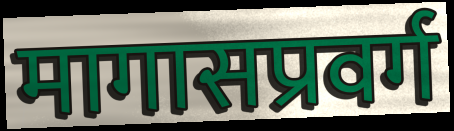
मागासप्रवर्ग